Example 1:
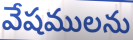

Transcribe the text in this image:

వేషములను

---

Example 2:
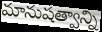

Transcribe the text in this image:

మానుషత్వాన్ని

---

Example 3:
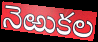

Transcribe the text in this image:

నెఱుకల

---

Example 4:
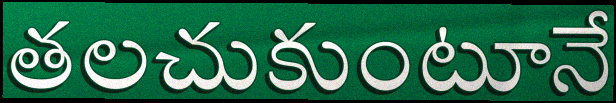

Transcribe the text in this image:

తలచుకుంటూనే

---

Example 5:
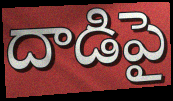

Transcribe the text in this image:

దాడిపై